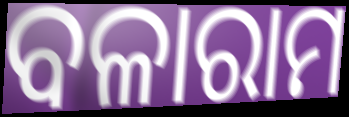
ବଳାରାମ